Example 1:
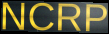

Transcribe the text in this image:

NCRP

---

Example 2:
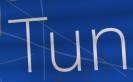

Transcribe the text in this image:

Tun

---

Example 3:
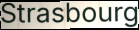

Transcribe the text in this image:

Strasbourg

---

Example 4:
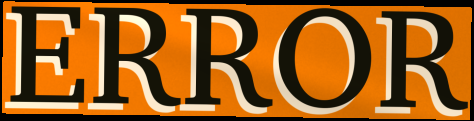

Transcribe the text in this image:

ERROR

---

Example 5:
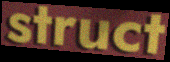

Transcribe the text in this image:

struct